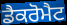
ਡੈਕਰੋਮੈਟ